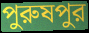
পুরুষপুর